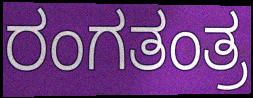
ರಂಗತಂತ್ರ